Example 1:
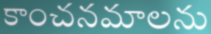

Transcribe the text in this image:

కాంచనమాలను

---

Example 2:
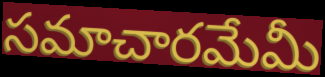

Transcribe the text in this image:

సమాచారమేమీ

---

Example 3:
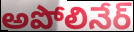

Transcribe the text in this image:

అపోలినేర్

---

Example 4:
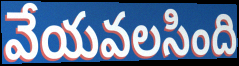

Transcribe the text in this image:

వేయవలసింది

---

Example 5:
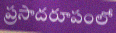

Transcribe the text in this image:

ప్రసాదరూపంలో